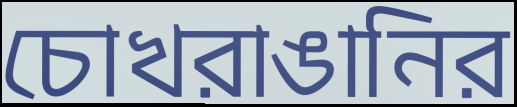
চোখরাঙানির